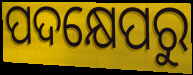
ପଦକ୍ଷେପରୁ